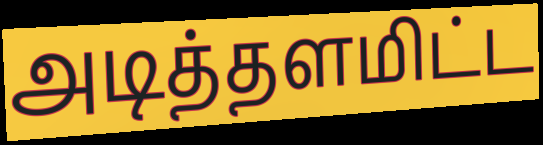
அடித்தளமிட்ட